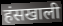
हंसखाली